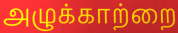
அழுக்காற்றை